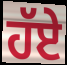
ਹੱਏ